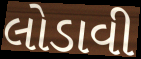
લોડાવી